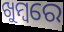
ଖୁମ୍ବରେ